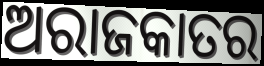
ଅରାଜକାତର